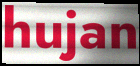
hujan